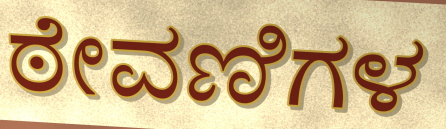
ಠೇವಣಿಗಳ